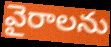
వైరాలను